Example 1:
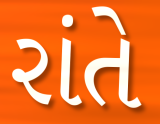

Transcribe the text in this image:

રાંતે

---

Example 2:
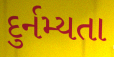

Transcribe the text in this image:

દુર્નમ્યતા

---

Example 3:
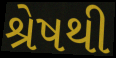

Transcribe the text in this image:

શ્રેષથી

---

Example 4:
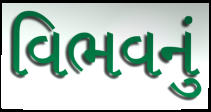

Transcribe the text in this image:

વિભવનું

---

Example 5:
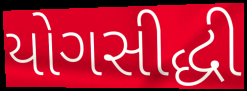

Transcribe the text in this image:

યોગસીદ્ધી